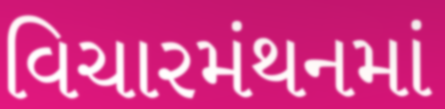
વિચારમંથનમાં